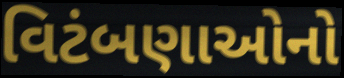
વિટંબણાઓનો